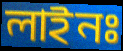
লাইনঃ